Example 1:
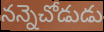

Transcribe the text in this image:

నన్నెచోడుడు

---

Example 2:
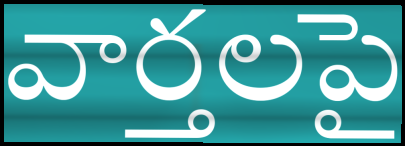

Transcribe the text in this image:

వార్తలపై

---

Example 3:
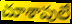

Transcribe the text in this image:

చూశావులే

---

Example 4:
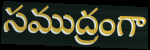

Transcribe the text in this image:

సముద్రంగా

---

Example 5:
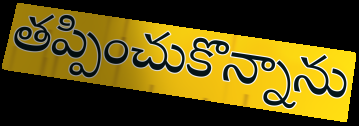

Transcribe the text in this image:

తప్పించుకొన్నాను